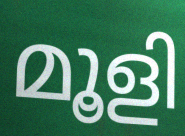
മൂളി